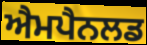
ਐਮਪੈਨਲਡ